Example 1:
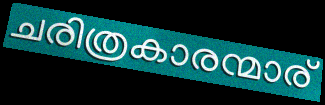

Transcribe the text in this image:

ചരിത്രകാരന്മാര്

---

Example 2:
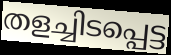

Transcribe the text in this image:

തളച്ചിടപ്പെട്ട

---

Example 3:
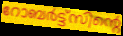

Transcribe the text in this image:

റോബർട്ട്സിന്റെ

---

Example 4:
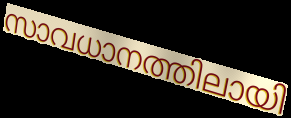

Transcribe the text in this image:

സാവധാനത്തിലായി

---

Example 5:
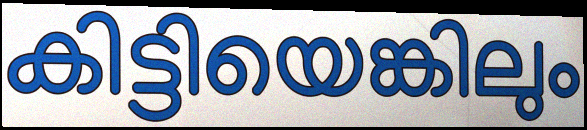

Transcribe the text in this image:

കിട്ടിയെങ്കിലും